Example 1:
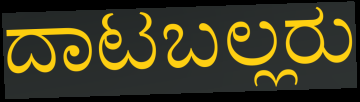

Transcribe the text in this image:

ದಾಟಬಲ್ಲರು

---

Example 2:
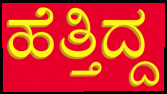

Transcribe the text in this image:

ಹೆತ್ತಿದ್ದ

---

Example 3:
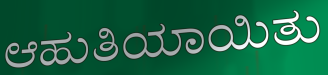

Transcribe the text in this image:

ಆಹುತಿಯಾಯಿತು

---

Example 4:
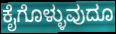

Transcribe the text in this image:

ಕೈಗೊಳ್ಳುವುದೂ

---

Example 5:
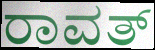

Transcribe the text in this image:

ರಾವತ್